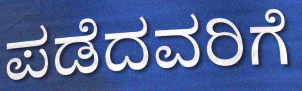
ಪಡೆದವರಿಗೆ